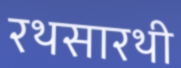
रथसारथी